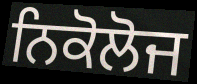
ਨਿਕੋਲੋਜ